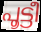
പൂട്ടീ